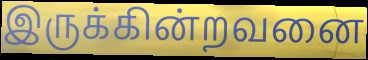
இருக்கின்றவனை